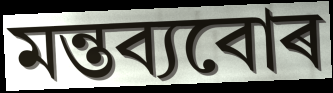
মন্তব্যবোৰ